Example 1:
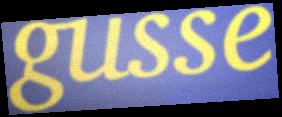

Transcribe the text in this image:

gusse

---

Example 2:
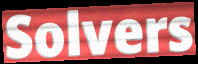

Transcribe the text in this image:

Solvers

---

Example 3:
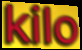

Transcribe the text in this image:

kilo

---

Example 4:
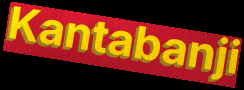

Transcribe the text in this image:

Kantabanji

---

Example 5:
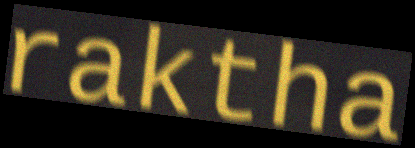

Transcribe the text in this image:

raktha